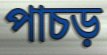
পাচড়